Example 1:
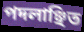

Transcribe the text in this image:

পদলাঞ্ছিত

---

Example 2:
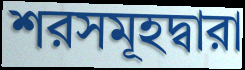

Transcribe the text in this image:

শরসমূহদ্বারা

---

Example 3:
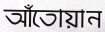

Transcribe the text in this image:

আঁতোয়ান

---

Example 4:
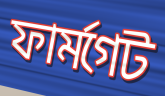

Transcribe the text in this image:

ফার্মগেট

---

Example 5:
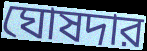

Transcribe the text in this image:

ঘোষদার